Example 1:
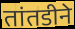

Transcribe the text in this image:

तांतडीने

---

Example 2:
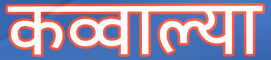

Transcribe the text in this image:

कव्वाल्या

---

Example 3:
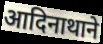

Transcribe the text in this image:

आदिनाथाने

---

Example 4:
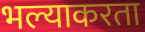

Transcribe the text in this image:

भल्याकरता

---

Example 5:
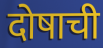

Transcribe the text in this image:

दोषाची